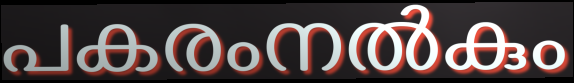
പകരംനൽകും